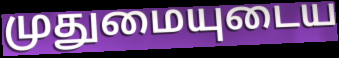
முதுமையுடைய